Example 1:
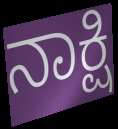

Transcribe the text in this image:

ನಾಕ್ಷಿ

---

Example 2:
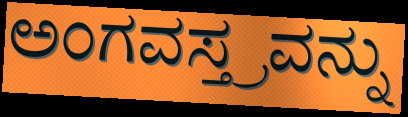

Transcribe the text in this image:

ಅಂಗವಸ್ತ್ರವನ್ನು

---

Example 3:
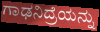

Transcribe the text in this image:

ಗಾಢನಿದ್ರೆಯನ್ನು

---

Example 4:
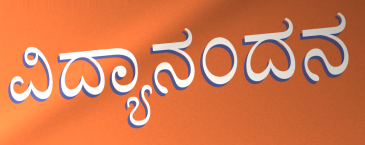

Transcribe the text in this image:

ವಿದ್ಯಾನಂದನ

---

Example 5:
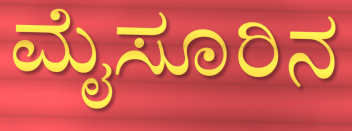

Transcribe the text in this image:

ಮೈಸೂರಿನ